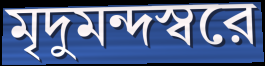
মৃদুমন্দস্বরে